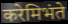
करेमिभंते